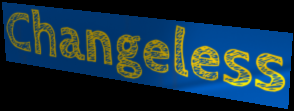
Changeless